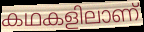
കഥകളിലാണ്